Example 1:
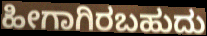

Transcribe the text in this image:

ಹೀಗಾಗಿರಬಹುದು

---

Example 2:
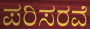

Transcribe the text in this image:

ಪರಿಸರವೆ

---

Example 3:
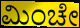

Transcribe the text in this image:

ಮಿಂಚೇ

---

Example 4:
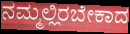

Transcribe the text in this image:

ನಮ್ಮಲ್ಲಿರಬೇಕಾದ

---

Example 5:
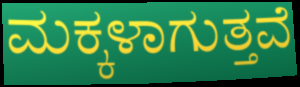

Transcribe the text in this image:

ಮಕ್ಕಳಾಗುತ್ತವೆ